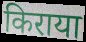
किराया